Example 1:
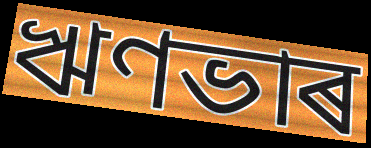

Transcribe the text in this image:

ঋণভাৰ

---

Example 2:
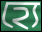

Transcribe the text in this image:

হ্যে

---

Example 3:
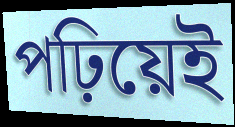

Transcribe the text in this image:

পঢ়িয়েই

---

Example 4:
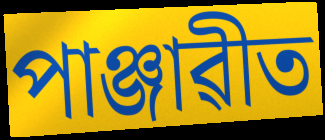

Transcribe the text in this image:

পাঞ্জাৱীত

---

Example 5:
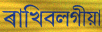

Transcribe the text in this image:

ৰাখিবলগীয়া